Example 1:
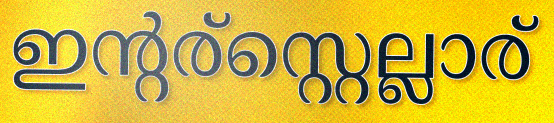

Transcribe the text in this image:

ഇന്റര്സ്റ്റെല്ലാര്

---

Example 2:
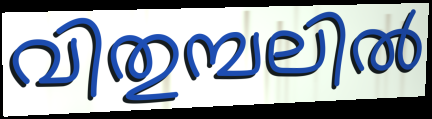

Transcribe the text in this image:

വിതുമ്പലിൽ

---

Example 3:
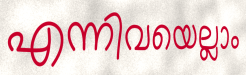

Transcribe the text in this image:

എന്നിവയെല്ലാം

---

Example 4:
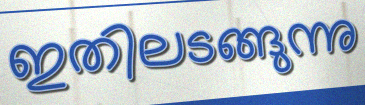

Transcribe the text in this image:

ഇതിലടങ്ങുന്നു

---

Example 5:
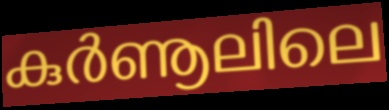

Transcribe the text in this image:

കുർണൂലിലെ